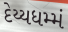
દેય્યધમ્મં